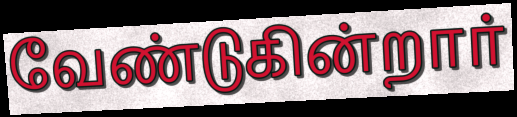
வேண்டுகின்றார்